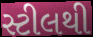
સ્ટીલથી